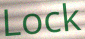
Lock